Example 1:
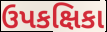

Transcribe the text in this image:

ઉપકક્ષિકા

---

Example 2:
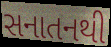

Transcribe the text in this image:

સનાતનથી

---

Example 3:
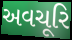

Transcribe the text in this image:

અવચૂરિ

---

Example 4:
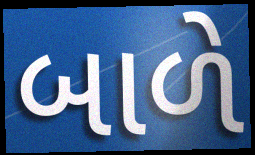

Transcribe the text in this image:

બાળે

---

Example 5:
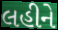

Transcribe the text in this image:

લહીને